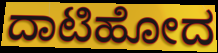
ದಾಟಿಹೋದ